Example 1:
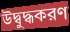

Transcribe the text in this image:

উদ্বুদ্ধকরণ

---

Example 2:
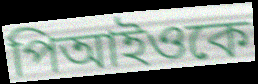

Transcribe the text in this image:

পিআইওকে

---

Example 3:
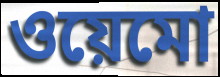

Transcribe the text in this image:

ওয়েমো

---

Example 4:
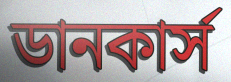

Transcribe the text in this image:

ডানকার্স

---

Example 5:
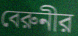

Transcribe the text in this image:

বেরুনীর